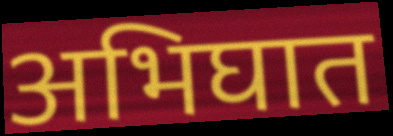
अभिघात